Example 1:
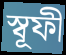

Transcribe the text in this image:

স্বূফী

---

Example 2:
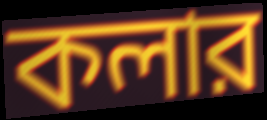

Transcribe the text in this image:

কলার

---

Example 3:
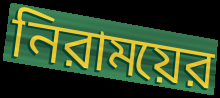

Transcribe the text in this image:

নিরাময়ের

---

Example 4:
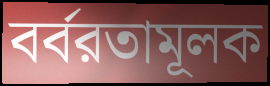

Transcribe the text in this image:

বর্বরতামূলক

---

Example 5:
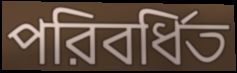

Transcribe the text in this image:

পরিবর্ধিত